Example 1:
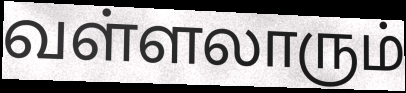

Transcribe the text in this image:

வள்ளலாரும்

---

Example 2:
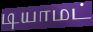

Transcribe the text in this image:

டியாமட்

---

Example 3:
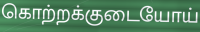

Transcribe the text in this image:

கொற்றக்குடையோய்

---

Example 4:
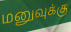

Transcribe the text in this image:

மனுவுக்கு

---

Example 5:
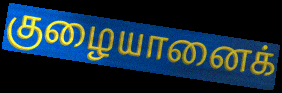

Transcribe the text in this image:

குழையானைக்